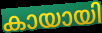
കായായി